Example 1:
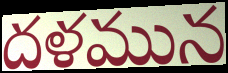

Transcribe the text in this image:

దళమున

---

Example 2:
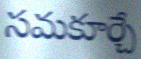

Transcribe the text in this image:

సమకూర్చే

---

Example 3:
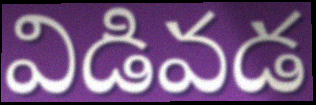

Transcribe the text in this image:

విడివడ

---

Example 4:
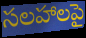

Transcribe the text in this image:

సలహాలపై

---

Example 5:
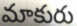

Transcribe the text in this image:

మాకురు